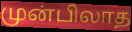
முன்பிலாத